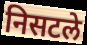
निसटले